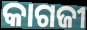
କାଗଜୀ